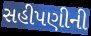
સહીપણીની